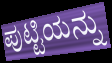
ಪುಟ್ಟಿಯನ್ನು